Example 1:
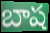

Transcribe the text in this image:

బాష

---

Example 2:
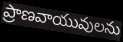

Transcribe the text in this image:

ప్రాణవాయువులను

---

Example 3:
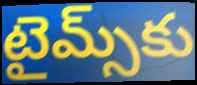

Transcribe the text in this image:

టైమ్స్‌కు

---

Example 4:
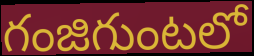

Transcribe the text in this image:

గంజిగుంటలో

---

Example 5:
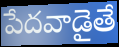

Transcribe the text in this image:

పేదవాడైతే